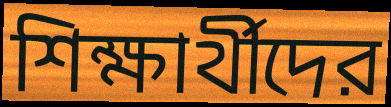
শিক্ষার্থীদের